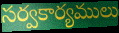
సర్వకార్యములు